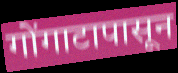
गोंगाटापासून